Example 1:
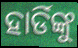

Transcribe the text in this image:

ହାର୍ଡିଙ୍କୁ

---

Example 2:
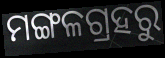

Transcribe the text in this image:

ମଙ୍ଗଳଗ୍ରହରୁ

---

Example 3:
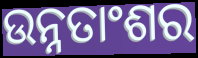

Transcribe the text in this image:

ଉନ୍ନତାଂଶର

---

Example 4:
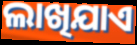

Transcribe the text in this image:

ଲାଖିଯାଏ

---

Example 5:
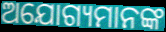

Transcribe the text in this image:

ଅଯୋଗ୍ୟମାନଙ୍କ